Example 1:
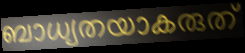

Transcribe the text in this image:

ബാധ്യതയാകരുത്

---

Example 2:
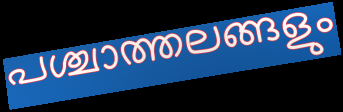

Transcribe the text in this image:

പശ്ചാത്തലങ്ങളും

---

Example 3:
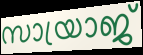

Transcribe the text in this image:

സായ്രാജ്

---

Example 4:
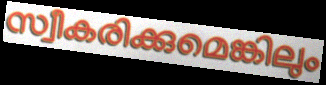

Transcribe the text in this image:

സ്വീകരിക്കുമെങ്കിലും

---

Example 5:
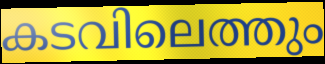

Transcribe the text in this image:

കടവിലെത്തും